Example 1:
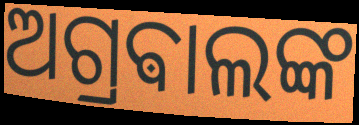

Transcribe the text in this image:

ଅଗ୍ରଵାଲଙ୍କ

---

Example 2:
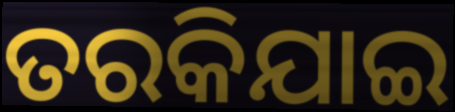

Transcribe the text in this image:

ତରକିଯାଇ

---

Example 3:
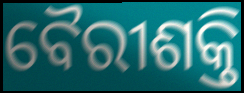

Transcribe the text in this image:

ବୈରୀଶକ୍ତି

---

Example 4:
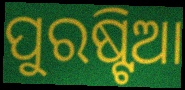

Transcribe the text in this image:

ପୁରଷ୍ଟିଆ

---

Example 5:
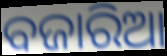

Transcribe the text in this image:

ବଜାରିଆ